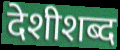
देशीशब्द